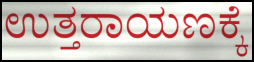
ಉತ್ತರಾಯಣಕ್ಕೆ